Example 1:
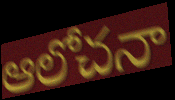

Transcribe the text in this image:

ఆలోచనా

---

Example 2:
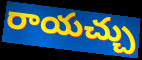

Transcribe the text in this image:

రాయచ్చు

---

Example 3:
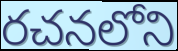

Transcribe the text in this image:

రచనలోని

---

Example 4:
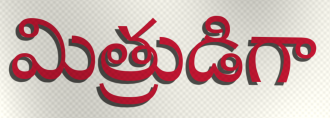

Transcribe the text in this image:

మిత్రుడిగా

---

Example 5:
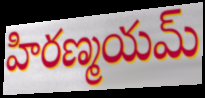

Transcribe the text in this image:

హిరణ్మయమ్